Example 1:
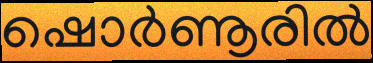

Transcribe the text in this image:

ഷൊർണൂരിൽ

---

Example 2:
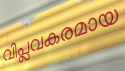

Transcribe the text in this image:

വിപ്ലവകരമായ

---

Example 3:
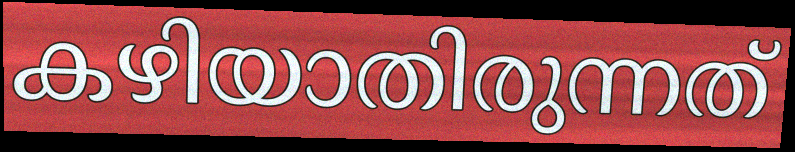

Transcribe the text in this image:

കഴിയാതിരുന്നത്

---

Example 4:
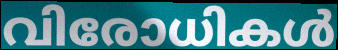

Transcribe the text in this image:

വിരോധികൾ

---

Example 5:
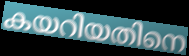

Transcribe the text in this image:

കയറിയതിനെ